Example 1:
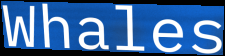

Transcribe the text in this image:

Whales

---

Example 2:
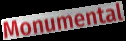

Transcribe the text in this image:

Monumental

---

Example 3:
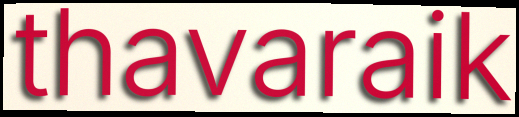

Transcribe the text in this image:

thavaraik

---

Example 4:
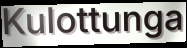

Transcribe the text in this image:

Kulottunga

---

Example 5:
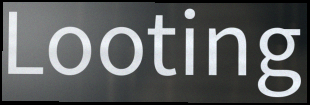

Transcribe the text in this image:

Looting